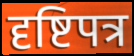
दृष्टिपत्र